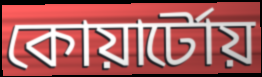
কোয়ার্টোয়